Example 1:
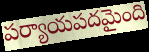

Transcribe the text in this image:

పర్యాయపదమైంది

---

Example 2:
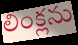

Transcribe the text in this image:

లింక్లను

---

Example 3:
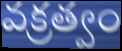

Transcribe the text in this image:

వక్రత్వం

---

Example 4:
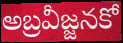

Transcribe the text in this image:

అబ్రవీజ్జనకో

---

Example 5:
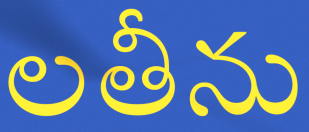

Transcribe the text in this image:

లతీను